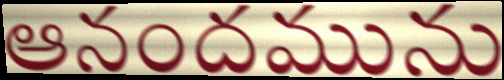
ఆనందమును